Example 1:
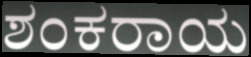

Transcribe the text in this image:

ಶಂಕರಾಯ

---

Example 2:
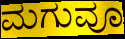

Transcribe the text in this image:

ಮಗುವೂ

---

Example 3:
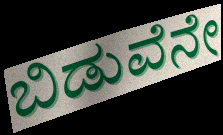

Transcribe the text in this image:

ಬಿಡುವೆನೇ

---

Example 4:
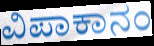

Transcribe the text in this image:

ವಿಪಾಕಾನಂ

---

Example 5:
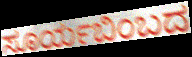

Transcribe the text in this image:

ಸೂರ್ಯಬಿಂಬದ